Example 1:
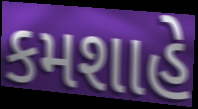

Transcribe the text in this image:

કમશાહે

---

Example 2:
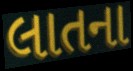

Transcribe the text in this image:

લાતના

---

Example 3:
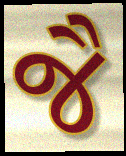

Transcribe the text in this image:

જૈ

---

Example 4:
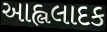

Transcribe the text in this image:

આહ્લલાદક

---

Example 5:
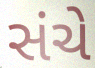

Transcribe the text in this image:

સંચે